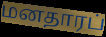
மனதாரப்